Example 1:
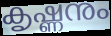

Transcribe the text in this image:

കൃഷ്ണനും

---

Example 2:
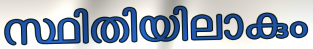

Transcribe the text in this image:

സ്ഥിതിയിലാകും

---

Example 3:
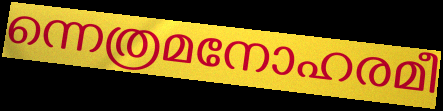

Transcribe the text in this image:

ന്നെത്രമനോഹരമീ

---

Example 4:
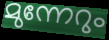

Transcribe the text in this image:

മുന്നേറും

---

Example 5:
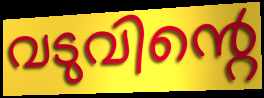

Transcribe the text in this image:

വടുവിന്റെ